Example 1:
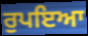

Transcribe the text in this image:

ਰੁਪਇਆ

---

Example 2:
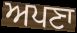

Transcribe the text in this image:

ਅਪਣਾ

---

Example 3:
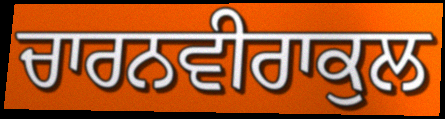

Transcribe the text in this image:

ਚਾਰਨਵੀਰਾਕੁਲ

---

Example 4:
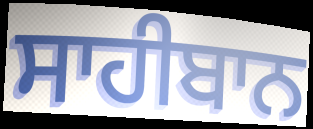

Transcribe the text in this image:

ਸਾਹੀਬਾਨ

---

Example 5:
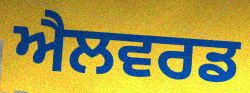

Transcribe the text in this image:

ਐਲਵਰਡ